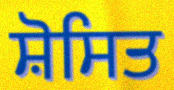
ਸ਼ੋਸਿਤ